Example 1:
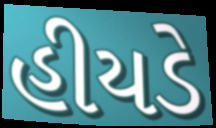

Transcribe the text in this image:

હીયડે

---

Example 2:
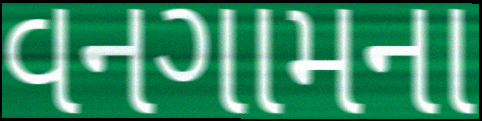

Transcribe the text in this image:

વનગામના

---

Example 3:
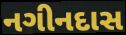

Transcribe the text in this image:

નગીનદાસ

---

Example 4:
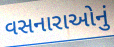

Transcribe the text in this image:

વસનારાઓનું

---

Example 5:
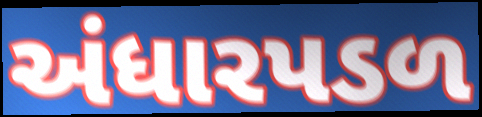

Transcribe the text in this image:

અંધારપડળ